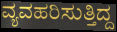
ವ್ಯವಹರಿಸುತ್ತಿದ್ದ